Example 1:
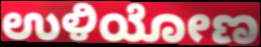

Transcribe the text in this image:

ಉಳಿಯೋಣ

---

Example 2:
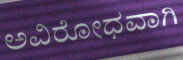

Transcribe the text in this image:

ಅವಿರೋಧವಾಗಿ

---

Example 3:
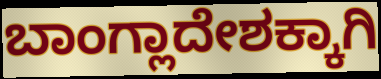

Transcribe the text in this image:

ಬಾಂಗ್ಲಾದೇಶಕ್ಕಾಗಿ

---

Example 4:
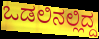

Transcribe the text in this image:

ಒಡಲಿನಲ್ಲಿದ್ದ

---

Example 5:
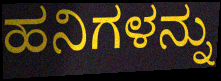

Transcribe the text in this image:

ಹನಿಗಳನ್ನು